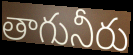
తాగునీరు